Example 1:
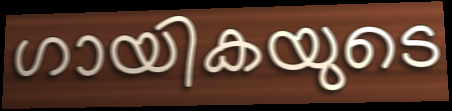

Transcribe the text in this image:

ഗായികയുടെ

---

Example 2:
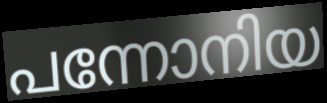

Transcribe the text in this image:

പന്നോനിയ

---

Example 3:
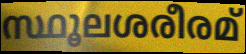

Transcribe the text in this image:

സ്ഥൂലശരീരമ്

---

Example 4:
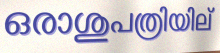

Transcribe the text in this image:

ഒരാശുപത്രിയില്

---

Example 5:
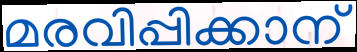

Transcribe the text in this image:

മരവിപ്പിക്കാന്